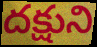
దక్షుని